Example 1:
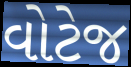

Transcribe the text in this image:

વોટેજ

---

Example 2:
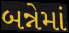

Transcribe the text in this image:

બન્નેમાં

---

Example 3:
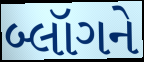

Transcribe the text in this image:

બ્લૉગને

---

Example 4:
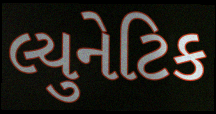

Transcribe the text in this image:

લ્યુનેટિક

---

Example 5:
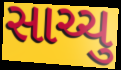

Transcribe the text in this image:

સાચ્ચુ